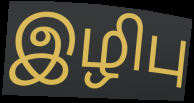
இழிபு